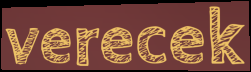
verecek